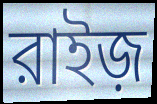
রাইজ়